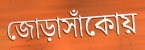
জোড়াসাঁকোয়